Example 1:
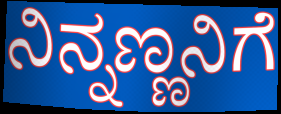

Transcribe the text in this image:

ನಿನ್ನಣ್ಣನಿಗೆ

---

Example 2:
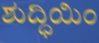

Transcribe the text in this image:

ಶುದ್ಧಿಯಿಂ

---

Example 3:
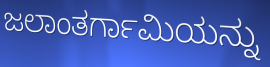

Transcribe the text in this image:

ಜಲಾಂತರ್ಗಾಮಿಯನ್ನು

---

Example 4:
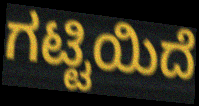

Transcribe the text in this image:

ಗಟ್ಟಿಯಿದೆ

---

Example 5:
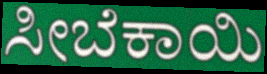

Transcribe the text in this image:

ಸೀಬೆಕಾಯಿ